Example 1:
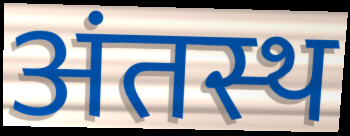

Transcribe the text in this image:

अंतस्थ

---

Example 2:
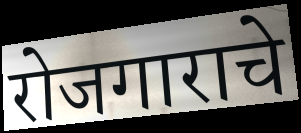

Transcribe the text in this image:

रोजगाराचे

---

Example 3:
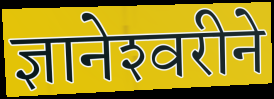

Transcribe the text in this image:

ज्ञानेश्वरीने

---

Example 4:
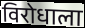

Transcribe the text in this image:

विरोधाला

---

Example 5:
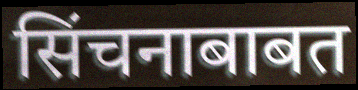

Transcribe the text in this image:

सिंचनाबाबत